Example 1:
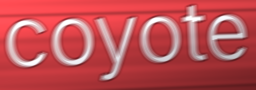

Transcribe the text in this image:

coyote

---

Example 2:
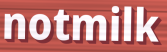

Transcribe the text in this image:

notmilk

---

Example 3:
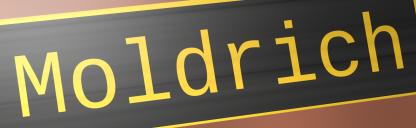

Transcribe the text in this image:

Moldrich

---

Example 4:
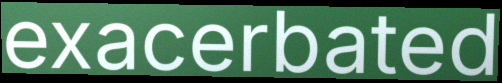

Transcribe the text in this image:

exacerbated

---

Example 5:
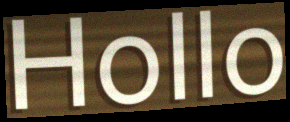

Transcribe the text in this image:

Hollo